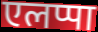
एलप्पा